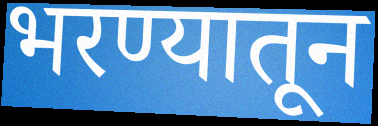
भरण्यातून